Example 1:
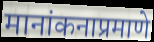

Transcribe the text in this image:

मानांकनाप्रमाणे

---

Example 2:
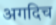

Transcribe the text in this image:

अगदिच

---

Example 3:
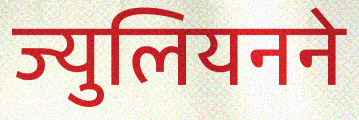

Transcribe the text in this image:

ज्युलियनने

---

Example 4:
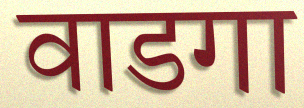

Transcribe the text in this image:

वाडगा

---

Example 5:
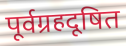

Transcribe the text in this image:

पूर्वग्रहदूषित